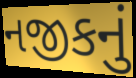
નજીકનું